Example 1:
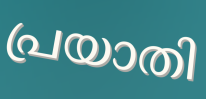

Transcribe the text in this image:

പ്രയാതി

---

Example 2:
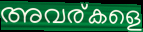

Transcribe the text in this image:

അവര്കളെ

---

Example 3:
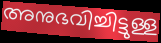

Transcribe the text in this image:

അനുഭവിച്ചിട്ടുള്ള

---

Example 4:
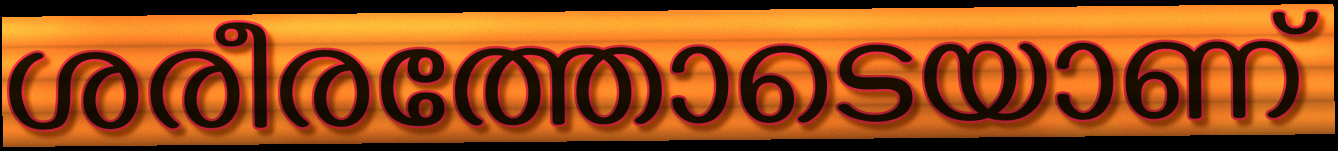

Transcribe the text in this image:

ശരീരത്തോടെയാണ്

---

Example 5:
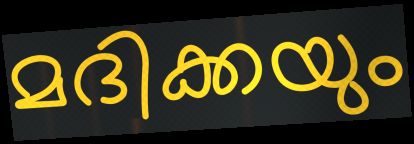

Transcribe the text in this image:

മദിക്കയും